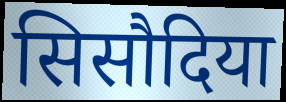
सिसौदिया